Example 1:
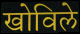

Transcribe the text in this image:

खोविले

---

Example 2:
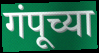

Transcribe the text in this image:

गंपूच्या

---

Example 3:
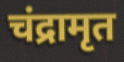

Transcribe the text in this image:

चंद्रामृत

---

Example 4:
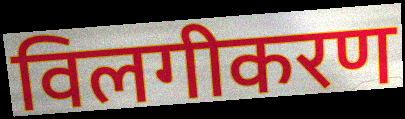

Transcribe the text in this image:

विलगीकरण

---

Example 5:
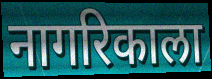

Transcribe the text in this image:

नागरिकाला